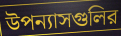
উপন্যাসগুলির